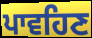
ਪਾਵਹਿਣ